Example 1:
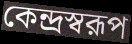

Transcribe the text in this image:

কেন্দ্রস্বরূপ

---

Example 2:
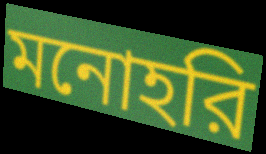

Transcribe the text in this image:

মনোহরি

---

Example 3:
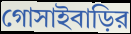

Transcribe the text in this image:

গোসাইবাড়ির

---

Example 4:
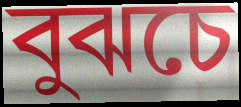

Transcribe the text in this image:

বুঝচে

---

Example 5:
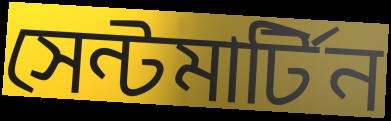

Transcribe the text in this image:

সেন্টমার্টিন